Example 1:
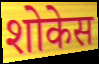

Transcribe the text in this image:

शोकेस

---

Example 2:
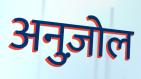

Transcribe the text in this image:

अनुज़ोल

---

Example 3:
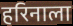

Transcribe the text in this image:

हरिनाला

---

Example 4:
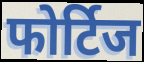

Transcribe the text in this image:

फोर्टिज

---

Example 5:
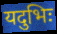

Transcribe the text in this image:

यदुभिः